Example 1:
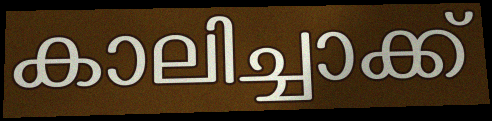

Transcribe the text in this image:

കാലിച്ചാക്ക്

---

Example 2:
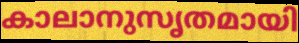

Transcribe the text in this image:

കാലാനുസൃതമായി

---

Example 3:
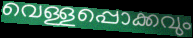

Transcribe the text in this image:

വെള്ളപ്പൊക്കവും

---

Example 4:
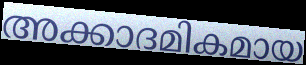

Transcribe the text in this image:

അക്കാദമികമായ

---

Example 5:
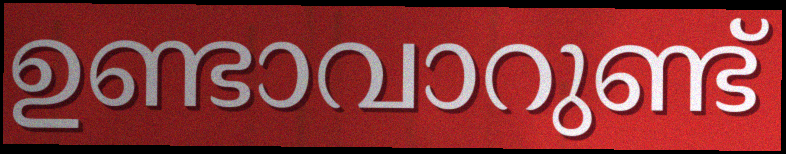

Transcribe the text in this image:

ഉണ്ടാവാറുണ്ട്